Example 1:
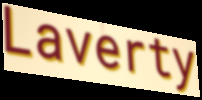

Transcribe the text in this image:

Laverty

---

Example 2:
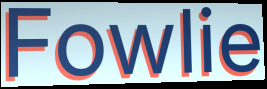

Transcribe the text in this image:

Fowlie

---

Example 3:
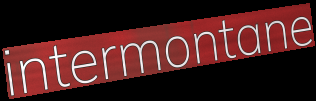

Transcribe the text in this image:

intermontane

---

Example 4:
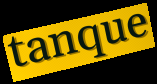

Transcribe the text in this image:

tanque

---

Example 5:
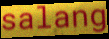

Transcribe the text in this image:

salang